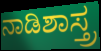
ನಾಡಿಶಾಸ್ತ್ರ